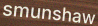
smunshaw